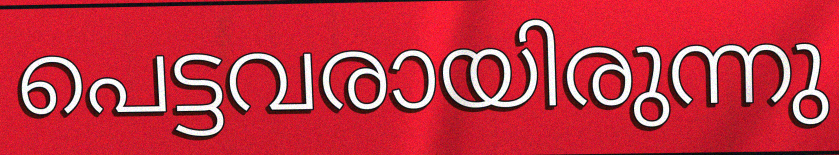
പെട്ടവരായിരുന്നു